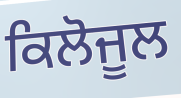
ਕਿਲੋਜੂਲ